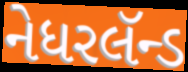
નેધરલૅન્ડ